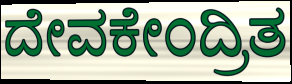
ದೇವಕೇಂದ್ರಿತ